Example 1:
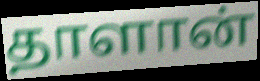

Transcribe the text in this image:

தாளான்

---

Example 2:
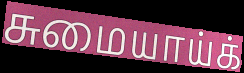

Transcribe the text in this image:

சுமையாய்க்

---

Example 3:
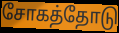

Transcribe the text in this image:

சோகத்தோடு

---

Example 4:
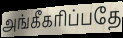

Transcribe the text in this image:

அங்கீகரிப்பதே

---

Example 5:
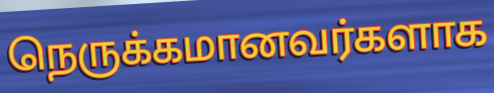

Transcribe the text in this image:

நெருக்கமானவர்களாக